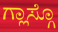
ಗ್ಲಾಸ್ಗೊ